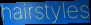
hairstyles